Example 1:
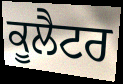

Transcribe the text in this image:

ਕੂਲੈਟਰ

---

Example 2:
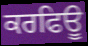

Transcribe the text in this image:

ਕਰਫਿਊ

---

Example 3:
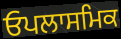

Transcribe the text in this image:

ਓਪਲਾਸਮਿਕ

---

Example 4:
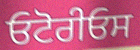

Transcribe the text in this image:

ਓਟੋਰੀਓਸ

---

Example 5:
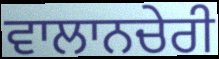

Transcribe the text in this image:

ਵਾਲਾਨਚੇਰੀ